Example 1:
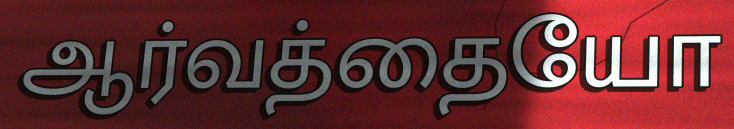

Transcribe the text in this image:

ஆர்வத்தையோ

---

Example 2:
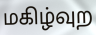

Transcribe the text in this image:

மகிழ்வுற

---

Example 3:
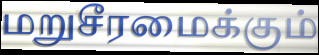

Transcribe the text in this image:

மறுசீரமைக்கும்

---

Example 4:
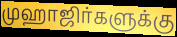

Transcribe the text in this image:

முஹாஜிர்களுக்கு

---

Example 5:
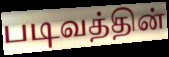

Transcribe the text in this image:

படிவத்தின்